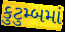
કુટુમ્બમાં